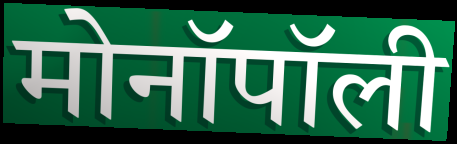
मोनॉपॉली